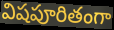
విషపూరితంగా